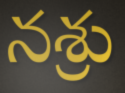
నశ్రు